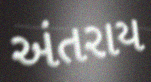
અંતરાય